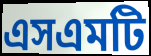
এসএমটি